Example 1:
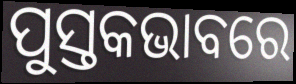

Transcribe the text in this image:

ପୁସ୍ତକଭାବରେ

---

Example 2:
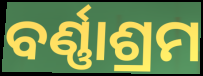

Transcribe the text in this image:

ବର୍ଣ୍ଣାଶ୍ରମ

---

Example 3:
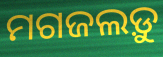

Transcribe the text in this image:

ମଗଜଲଡ଼ୁ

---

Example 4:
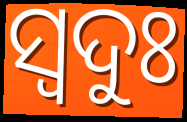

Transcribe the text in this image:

ସ୍ବଦୁଃ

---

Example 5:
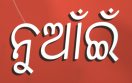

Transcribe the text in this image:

ନୁଆଁଇଁ